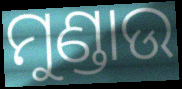
ମୁଣ୍ଡାଉ